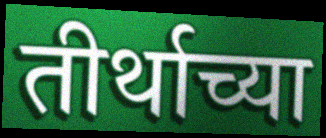
तीर्थाच्या